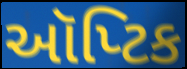
ઑપ્ટિક